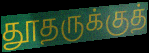
தூதருக்குத்